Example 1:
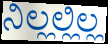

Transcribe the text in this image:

ನಿಲ್ಲಲ್ಲಿಲ್ಲ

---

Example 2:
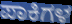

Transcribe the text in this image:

ಪಾಕಿಗಳ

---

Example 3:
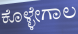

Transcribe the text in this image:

ಕೊಳ್ಳೇಗಾಲ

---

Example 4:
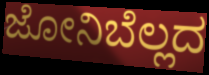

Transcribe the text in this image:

ಜೋನಿಬೆಲ್ಲದ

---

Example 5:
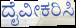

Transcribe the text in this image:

ದೈವೀಕರಿಸಿ